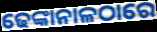
ଢେଙ୍କାନାଳଠାରେ